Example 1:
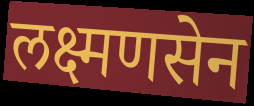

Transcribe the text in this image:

लक्ष्मणसेन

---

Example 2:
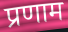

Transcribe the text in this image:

प्रणाम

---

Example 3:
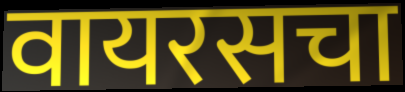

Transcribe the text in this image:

वायरसचा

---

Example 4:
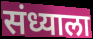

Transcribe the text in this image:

संध्याला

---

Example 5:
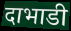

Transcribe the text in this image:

दाभाडी